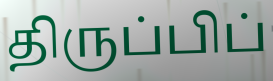
திருப்பிப்